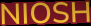
NIOSH